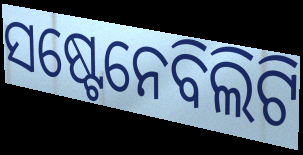
ସଷ୍ଟେନେବିଲିଟି